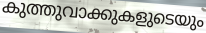
കുത്തുവാക്കുകളുടെയും